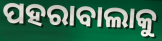
ପହରାବାଲାକୁ